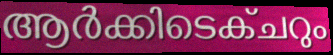
ആർക്കിടെക്ചറും